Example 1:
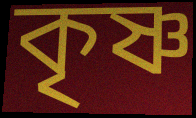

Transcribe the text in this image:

কৃষ্ণ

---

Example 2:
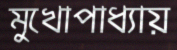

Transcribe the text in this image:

মুখোপাধ্যায়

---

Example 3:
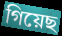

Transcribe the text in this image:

গিয়েছ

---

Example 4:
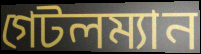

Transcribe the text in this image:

গেটলম্যান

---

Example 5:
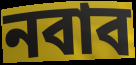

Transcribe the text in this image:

নবাব